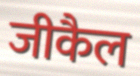
जीकैल